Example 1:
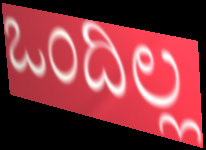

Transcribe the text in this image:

ಒಂದಿಲ್ಲ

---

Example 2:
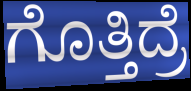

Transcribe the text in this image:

ಗೊತ್ತಿದ್ರೆ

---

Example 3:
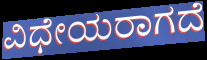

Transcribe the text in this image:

ವಿಧೇಯರಾಗದೆ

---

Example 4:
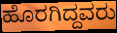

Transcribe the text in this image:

ಹೊರಗಿದ್ದವರು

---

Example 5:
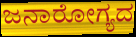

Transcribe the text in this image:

ಜನಾರೋಗ್ಯದ